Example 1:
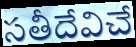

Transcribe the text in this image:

సతీదేవిచే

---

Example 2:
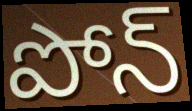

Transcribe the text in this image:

పోన్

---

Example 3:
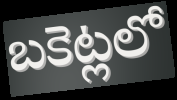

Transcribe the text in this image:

బకెట్లలో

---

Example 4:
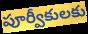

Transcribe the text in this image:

పూర్వీకులకు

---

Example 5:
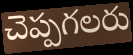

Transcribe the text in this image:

చెప్పగలరు